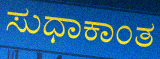
ಸುಧಾಕಾಂತ